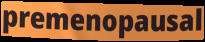
premenopausal